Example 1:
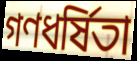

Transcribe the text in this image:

গণধর্ষিতা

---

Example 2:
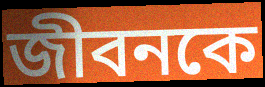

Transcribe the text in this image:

জীবনকে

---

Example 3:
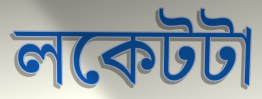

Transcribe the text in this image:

লকেটটা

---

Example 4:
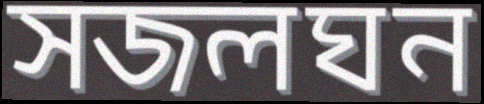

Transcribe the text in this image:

সজলঘন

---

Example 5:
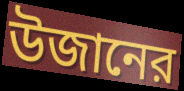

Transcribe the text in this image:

উজানের